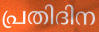
പ്രതിദിന